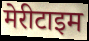
मेरीटाइम